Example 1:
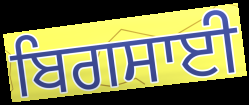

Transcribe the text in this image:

ਬਿਗਸਾਈ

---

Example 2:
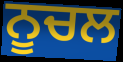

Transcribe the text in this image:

ਨੂਚਲ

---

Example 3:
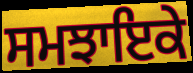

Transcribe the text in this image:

ਸਮਝਾਇਕੇ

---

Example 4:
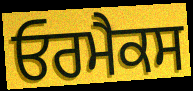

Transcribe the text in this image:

ਓਰਮੈਕਸ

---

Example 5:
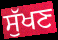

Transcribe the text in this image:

ਸੁੱਖਣ